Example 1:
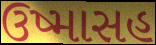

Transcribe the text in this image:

ઉષ્માસહ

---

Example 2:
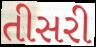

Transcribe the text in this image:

તીસરી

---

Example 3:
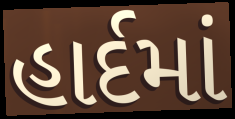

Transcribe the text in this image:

હાર્દમાં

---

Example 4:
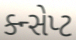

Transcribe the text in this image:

ક્ન્સેપ્ટ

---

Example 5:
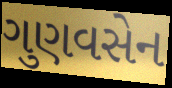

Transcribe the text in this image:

ગુણવસેન